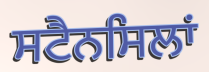
ਸਟੈਨਸਿਲਾਂ